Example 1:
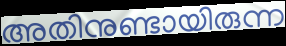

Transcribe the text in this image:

അതിനുണ്ടായിരുന്ന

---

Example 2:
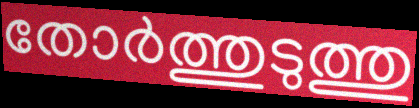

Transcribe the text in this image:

തോർത്തുടുത്തു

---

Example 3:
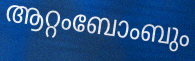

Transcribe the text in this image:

ആറ്റംബോംബും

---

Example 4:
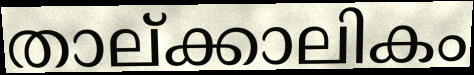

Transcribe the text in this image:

താല്ക്കാലികം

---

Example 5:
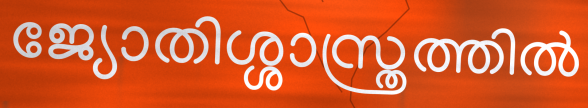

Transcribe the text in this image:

ജ്യോതിശ്ശാസ്ത്രത്തിൽ